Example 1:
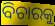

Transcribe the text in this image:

ବିଚାରକୁ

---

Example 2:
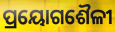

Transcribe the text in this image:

ପ୍ରୟୋଗଶୈଳୀ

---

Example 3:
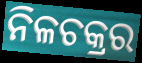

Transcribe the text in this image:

ନିଳଚକ୍ରର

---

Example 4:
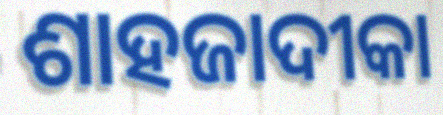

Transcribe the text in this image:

ଶାହଜାଦୀକା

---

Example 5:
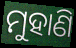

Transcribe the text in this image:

ମୁହାଣି